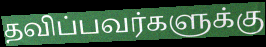
தவிப்பவர்களுக்கு